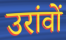
उरांवों